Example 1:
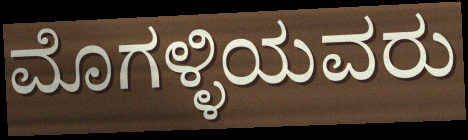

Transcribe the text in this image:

ಮೊಗಳ್ಳಿಯವರು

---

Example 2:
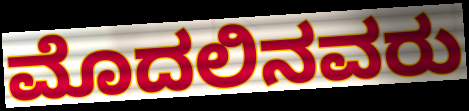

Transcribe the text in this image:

ಮೊದಲಿನವರು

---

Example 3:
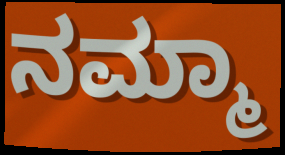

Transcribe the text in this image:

ನಮ್ಮಾ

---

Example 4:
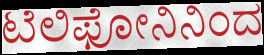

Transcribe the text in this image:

ಟೆಲಿಫೋನಿನಿಂದ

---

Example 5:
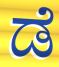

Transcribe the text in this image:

ಡೆ